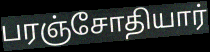
பரஞ்சோதியார்